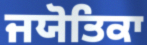
ਜਯੋਤਿਕਾ